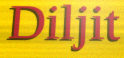
Diljit